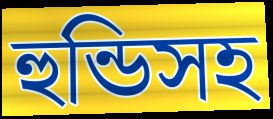
হুন্ডিসহ